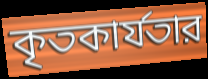
কৃতকার্যতার